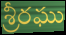
శ్రీరఘు